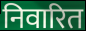
निवारित